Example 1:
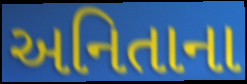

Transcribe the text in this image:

અનિતાના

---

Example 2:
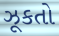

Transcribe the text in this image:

ઝૂકતો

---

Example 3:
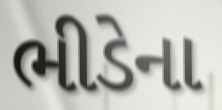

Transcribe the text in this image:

ભીડેના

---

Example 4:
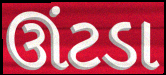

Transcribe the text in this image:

ઊંટડા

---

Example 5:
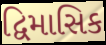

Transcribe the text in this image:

દ્વિમાસિક